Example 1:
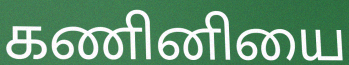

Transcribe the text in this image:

கணினியை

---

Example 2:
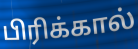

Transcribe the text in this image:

பிரிக்கால்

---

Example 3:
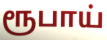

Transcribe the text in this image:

ரூபாய்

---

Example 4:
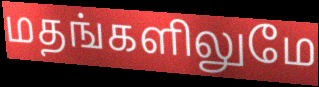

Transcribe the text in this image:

மதங்களிலுமே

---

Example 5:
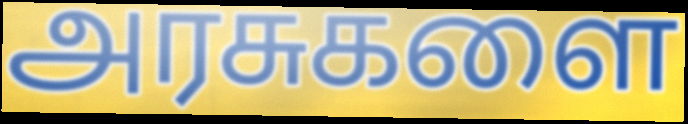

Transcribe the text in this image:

அரசுகளை